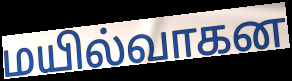
மயில்வாகன